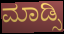
ಮಾಡ್ಸಿ